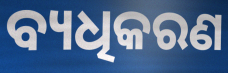
ବ୍ୟଧିକରଣ